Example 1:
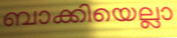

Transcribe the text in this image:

ബാക്കിയെല്ലാ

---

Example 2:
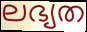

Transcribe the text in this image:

ലഭ്യത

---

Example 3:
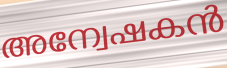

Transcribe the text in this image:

അന്വേഷകൻ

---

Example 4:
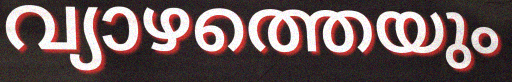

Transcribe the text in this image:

വ്യാഴത്തെയും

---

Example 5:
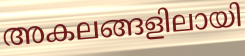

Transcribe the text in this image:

അകലങ്ങളിലായി